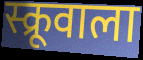
स्क्रूवाला